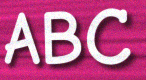
ABC